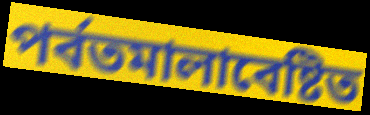
পর্বতমালাবেষ্টিত